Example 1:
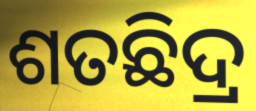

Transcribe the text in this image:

ଶତଛିଦ୍ର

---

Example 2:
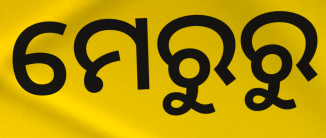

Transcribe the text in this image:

ମେରୁରୁ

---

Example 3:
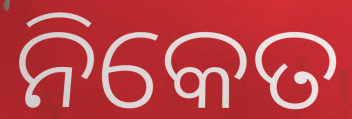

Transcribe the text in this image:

ନିକେତ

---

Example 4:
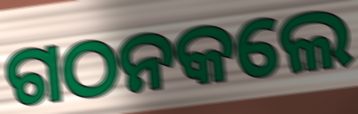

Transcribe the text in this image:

ଗଠନକଲେ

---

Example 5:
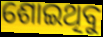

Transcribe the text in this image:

ଶୋଇଥିବୁ